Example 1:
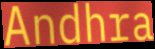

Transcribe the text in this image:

Andhra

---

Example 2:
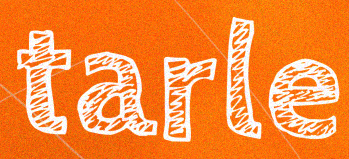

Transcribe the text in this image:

tarle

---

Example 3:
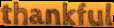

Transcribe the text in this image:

thankful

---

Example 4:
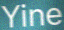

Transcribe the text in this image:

Yine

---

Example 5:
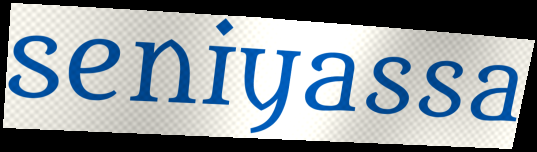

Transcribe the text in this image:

seniyassa